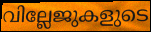
വില്ലേജുകളുടെ